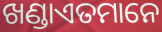
ଖଣ୍ଡାଏତମାନେ